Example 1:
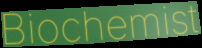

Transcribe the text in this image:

Biochemist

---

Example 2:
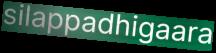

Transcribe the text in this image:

silappadhigaara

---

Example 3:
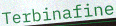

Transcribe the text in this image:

Terbinafine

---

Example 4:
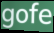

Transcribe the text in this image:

gofe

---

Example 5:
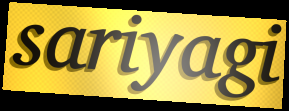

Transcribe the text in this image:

sariyagi